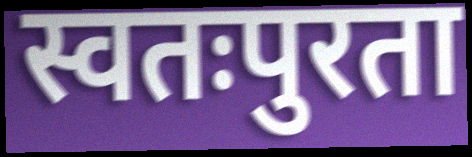
स्वतःपुरता